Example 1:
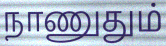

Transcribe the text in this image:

நாணுதும்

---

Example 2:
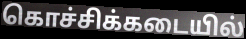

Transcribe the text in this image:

கொச்சிக்கடையில்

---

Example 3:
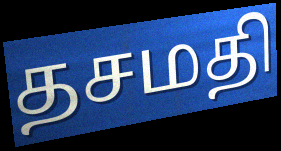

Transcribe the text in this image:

தசமதி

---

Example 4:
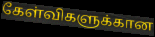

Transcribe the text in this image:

கேள்விகளுக்கான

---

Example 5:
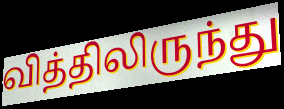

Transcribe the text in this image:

வித்திலிருந்து